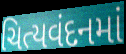
ચિત્યવંદનમાં